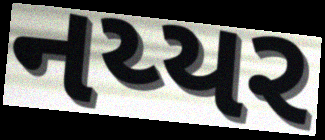
નય્યર